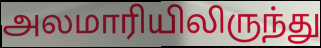
அலமாரியிலிருந்து